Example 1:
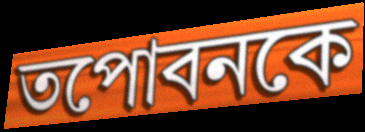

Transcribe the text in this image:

তপোবনকে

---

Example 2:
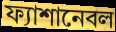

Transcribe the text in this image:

ফ্যাশানেবল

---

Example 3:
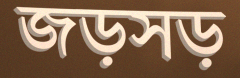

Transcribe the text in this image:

জড়সড়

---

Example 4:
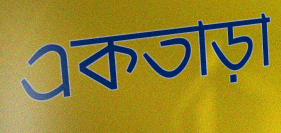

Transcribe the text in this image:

একতাড়া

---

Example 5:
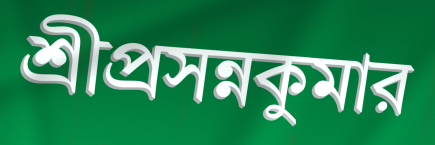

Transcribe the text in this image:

শ্রীপ্রসন্নকুমার